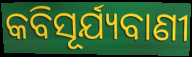
କବିସୂର୍ଯ୍ୟବାଣୀ